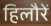
हिलौरें